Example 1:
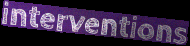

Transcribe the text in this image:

interventions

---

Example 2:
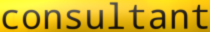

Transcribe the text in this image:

consultant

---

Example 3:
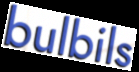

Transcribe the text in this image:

bulbils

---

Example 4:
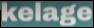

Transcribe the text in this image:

kelage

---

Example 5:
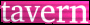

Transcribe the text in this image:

tavern